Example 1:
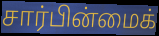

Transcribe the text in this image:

சார்பின்மைக்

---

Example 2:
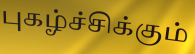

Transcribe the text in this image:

புகழ்ச்சிக்கும்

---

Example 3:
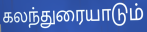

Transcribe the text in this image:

கலந்துரையாடும்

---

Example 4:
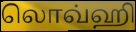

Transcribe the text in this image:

லொவ்ஹி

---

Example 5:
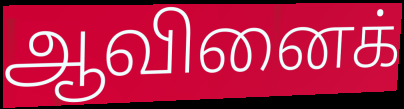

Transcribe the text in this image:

ஆவினைக்